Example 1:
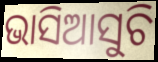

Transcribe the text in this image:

ଭାସିଆସୁଚି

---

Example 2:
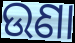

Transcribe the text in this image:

ଉଣା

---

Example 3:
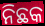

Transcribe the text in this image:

ନିଛକ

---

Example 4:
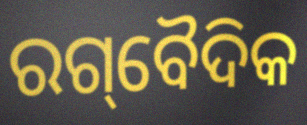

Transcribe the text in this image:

ରଗ୍‌ବୈଦିକ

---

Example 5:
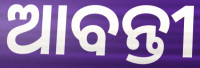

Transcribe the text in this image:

ଆବନ୍ତୀ